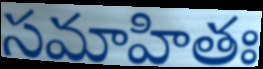
సమాహితః